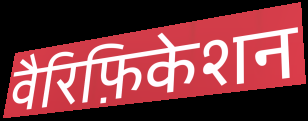
वैरिफ़िकेशन